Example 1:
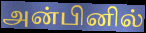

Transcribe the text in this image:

அன்பினில்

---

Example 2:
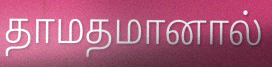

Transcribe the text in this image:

தாமதமானால்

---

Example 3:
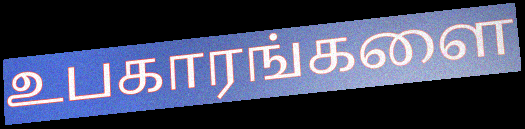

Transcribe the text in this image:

உபகாரங்களை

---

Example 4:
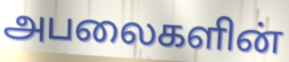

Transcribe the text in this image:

அபலைகளின்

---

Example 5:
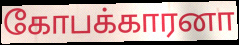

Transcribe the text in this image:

கோபக்காரனா